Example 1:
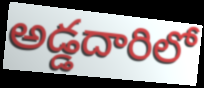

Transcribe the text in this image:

అడ్డదారిలో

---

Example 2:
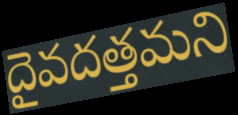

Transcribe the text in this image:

దైవదత్తమని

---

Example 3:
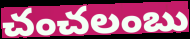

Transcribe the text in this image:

చంచలంబు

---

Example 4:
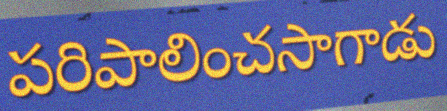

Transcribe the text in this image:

పరిపాలించసాగాడు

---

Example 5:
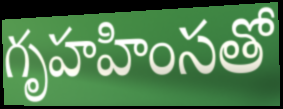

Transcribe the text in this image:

గృహహింసతో